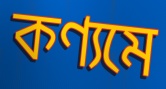
কণ্যমে